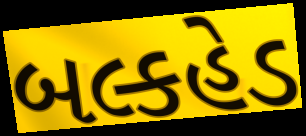
બલ્કહેડ